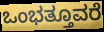
ಒಂಭತ್ತೂವರೆ